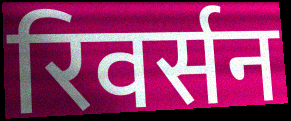
रिवर्सन